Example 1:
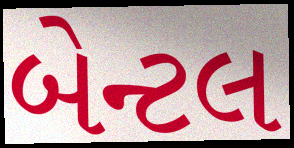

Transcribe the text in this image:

બેન્ટલ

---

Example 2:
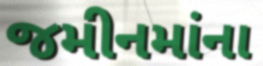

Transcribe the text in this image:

જમીનમાંના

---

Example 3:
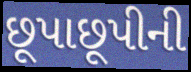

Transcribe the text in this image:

છૂપાછૂપીની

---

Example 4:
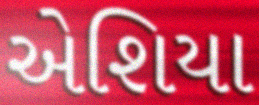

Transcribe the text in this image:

એશિયા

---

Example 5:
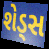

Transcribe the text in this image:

શેડ્સ